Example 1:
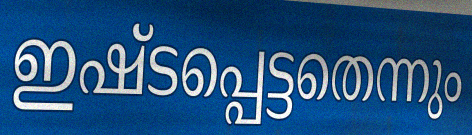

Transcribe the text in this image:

ഇഷ്ടപ്പെട്ടതെന്നും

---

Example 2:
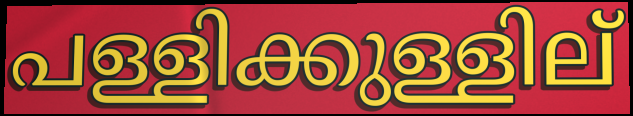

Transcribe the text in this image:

പള്ളിക്കുള്ളില്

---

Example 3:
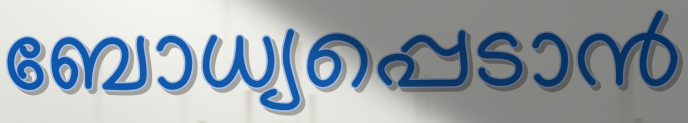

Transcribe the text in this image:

ബോധ്യപ്പെടാൻ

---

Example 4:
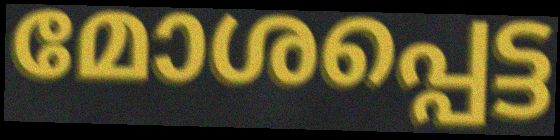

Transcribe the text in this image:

മോശപ്പെട്ട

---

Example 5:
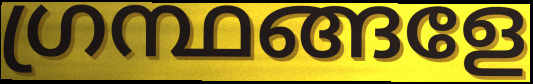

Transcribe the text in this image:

ഗ്രന്ഥങ്ങളേ